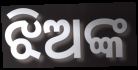
ଝିଅଙ୍କ